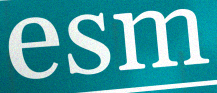
esm